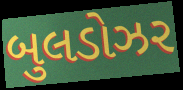
બુલડોઝર